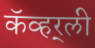
कॅव्हर्ली